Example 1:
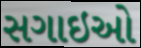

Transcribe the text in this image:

સગાઇઓ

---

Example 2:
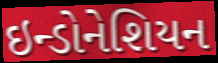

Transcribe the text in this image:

ઇન્ડોનેશિયન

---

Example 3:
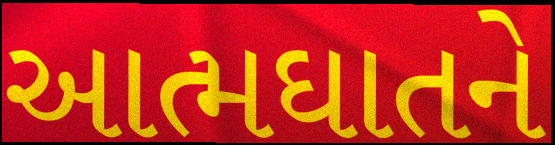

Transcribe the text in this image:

આત્મઘાતને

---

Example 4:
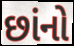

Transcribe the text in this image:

છાંનો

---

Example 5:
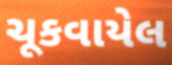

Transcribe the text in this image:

ચૂકવાયેલ